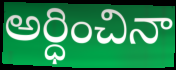
అర్ధించినా